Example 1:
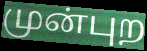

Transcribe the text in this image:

முன்புற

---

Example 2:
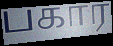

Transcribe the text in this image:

பகார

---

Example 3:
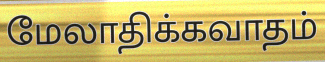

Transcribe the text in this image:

மேலாதிக்கவாதம்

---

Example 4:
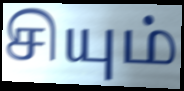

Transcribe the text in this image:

சியும்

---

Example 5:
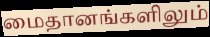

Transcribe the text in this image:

மைதானங்களிலும்